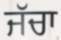
ਜੱਚਾ